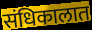
संधिकालात